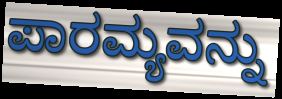
ಪಾರಮ್ಯವನ್ನು